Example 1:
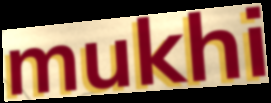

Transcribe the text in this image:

mukhi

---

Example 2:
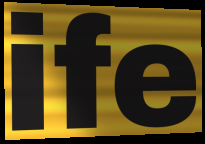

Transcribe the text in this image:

ife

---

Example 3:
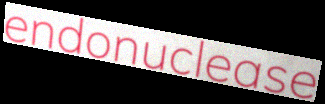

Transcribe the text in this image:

endonuclease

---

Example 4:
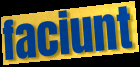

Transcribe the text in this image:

faciunt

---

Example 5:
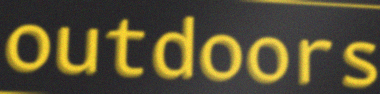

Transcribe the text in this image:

outdoors